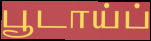
பூடாய்ப்